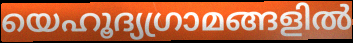
യെഹൂദ്യഗ്രാമങ്ങളിൽ